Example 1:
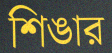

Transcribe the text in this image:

শিঙার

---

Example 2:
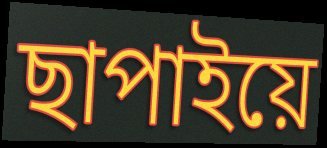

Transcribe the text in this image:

ছাপাইয়ে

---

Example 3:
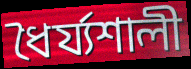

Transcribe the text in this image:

ধৈর্য্যশালী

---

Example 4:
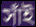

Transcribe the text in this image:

সাঁই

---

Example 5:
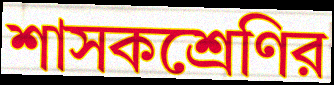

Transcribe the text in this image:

শাসকশ্রেণির